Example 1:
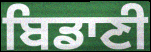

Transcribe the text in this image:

ਬਿਡਾਣੀ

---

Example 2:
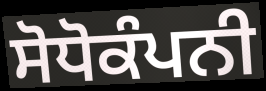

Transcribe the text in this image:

ਸੋਧੋਕੰਪਨੀ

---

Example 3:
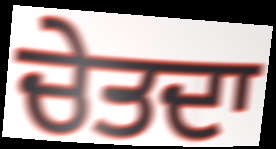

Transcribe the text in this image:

ਚੇਤਦਾ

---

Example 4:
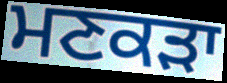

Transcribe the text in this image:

ਮਣਕੜਾ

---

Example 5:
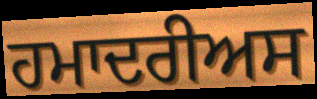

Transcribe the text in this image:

ਹਮਾਦਰੀਅਸ